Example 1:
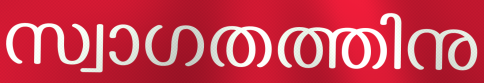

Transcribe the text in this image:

സ്വാഗതത്തിനു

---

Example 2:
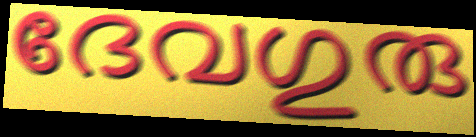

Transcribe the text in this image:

ദേവഗുരു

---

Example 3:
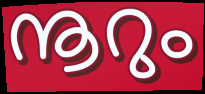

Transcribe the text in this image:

നൂറും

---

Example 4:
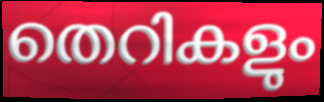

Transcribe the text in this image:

തെറികളും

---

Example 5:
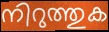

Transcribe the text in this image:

നിറുത്തുക